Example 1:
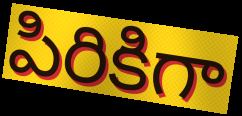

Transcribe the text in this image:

పిరికిగా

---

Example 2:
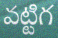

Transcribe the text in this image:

వట్టిగ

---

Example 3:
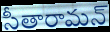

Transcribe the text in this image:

సీతారామన్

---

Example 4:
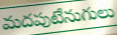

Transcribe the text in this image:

మదపుటేనుగులు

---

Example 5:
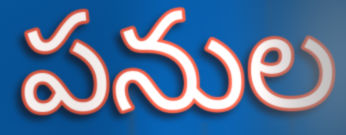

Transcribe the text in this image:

పనుల